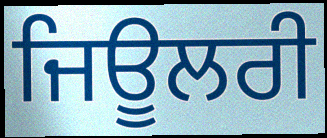
ਜਿਊਲਰੀ